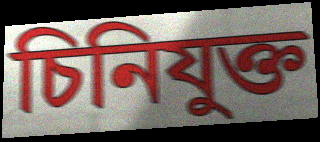
চিনিযুক্ত